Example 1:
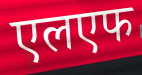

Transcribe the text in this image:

एलएफ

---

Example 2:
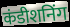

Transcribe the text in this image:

कंडीशनिंग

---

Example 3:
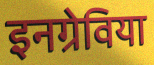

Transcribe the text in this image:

इनग्रेविया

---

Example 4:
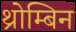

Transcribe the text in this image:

थ्रोम्बिन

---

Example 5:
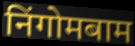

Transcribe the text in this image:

निंगोमबाम